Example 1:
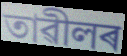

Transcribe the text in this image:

তাৱীলৰ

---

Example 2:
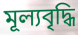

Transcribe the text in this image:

মূল্যবৃদ্ধি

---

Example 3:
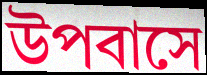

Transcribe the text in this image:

উপবাসে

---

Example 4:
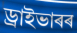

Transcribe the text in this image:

ড্ৰাইভাৰৰ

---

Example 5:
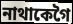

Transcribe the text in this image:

নাথাকেগৈ